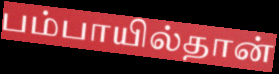
பம்பாயில்தான்